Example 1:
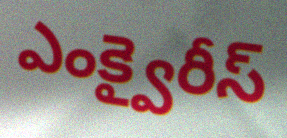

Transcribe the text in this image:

ఎంక్వైరీస్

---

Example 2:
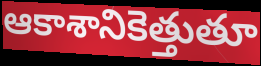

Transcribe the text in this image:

ఆకాశానికెత్తుతూ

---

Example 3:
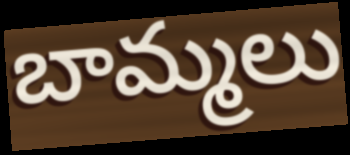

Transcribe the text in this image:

బామ్మలు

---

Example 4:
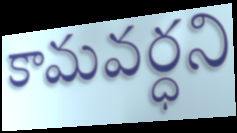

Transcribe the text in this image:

కామవర్ధని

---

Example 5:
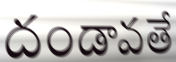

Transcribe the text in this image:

దండావతే